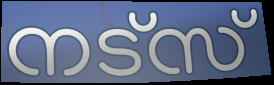
നട്സ്